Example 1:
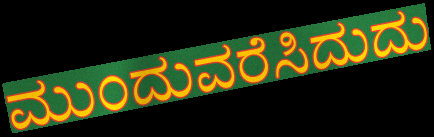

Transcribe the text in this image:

ಮುಂದುವರೆಸಿದುದು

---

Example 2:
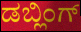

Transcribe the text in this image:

ಡಬ್ಲಿಂಗ್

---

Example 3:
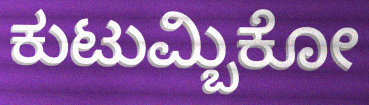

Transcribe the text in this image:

ಕುಟುಮ್ಬಿಕೋ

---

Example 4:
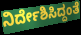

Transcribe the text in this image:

ನಿರ್ದೇಶಿಸಿದ್ದಂತೆ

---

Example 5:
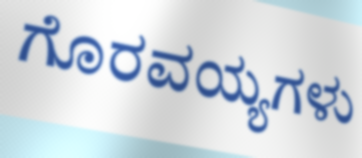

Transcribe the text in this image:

ಗೊರವಯ್ಯಗಳು